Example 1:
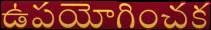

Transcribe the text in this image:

ఉపయోగించక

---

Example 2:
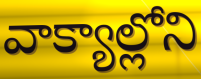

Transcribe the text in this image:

వాక్యాల్లోని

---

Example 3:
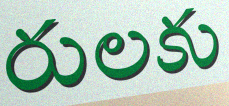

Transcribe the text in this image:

రులకు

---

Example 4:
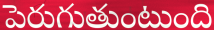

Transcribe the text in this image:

పెరుగుతుంటుంది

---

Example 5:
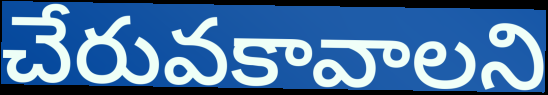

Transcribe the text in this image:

చేరువకావాలని